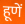
हूणें